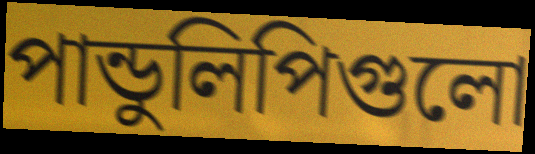
পান্ডুলিপিগুলো